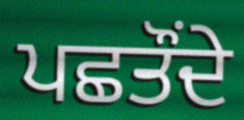
ਪਛਤੌਂਦੇ